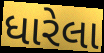
ધારેલા